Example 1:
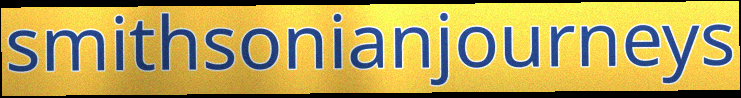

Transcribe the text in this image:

smithsonianjourneys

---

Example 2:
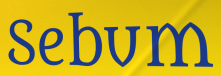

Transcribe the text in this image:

Sebum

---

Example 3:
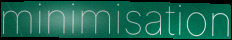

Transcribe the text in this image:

minimisation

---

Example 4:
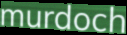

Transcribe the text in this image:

murdoch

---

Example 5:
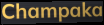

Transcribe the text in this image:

Champaka